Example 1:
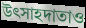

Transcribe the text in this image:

উৎসাহদাতাও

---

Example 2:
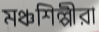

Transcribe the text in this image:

মঞ্চশিল্পীরা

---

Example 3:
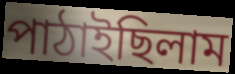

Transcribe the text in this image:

পাঠাইছিলাম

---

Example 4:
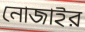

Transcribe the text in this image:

নোজাইর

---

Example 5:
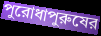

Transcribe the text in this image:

পুরোধাপুরুষের